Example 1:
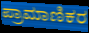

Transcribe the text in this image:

ಪ್ರಾಮಾಣಿಕರ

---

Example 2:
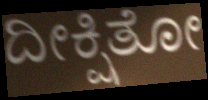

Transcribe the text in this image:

ದೀಕ್ಷಿತೋ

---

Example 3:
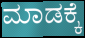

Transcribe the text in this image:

ಮಾಡಕ್ಕೆ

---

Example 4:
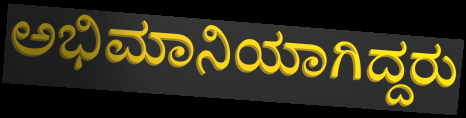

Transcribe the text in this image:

ಅಭಿಮಾನಿಯಾಗಿದ್ದರು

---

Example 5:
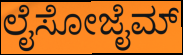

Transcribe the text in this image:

ಲೈಸೋಜೈಮ್